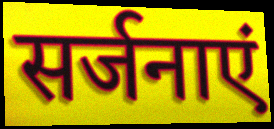
सर्जनाएं